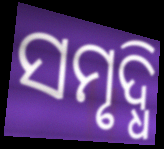
ସମୃଦ୍ଧି